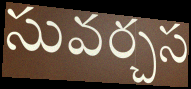
సువర్చస